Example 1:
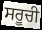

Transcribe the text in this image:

ਸਰੂਚੀ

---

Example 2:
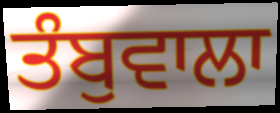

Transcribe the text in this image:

ਤੰਬੁਵਾਲਾ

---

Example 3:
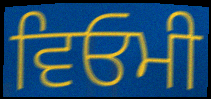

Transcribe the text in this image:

ਵਿਓਮੀ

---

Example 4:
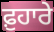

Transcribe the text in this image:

ਫ਼ੁਹਾਰੇ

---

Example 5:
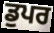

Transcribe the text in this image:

ਡੁਪਰ